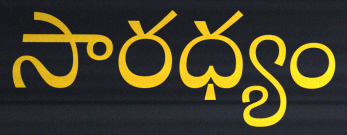
సారధ్యం